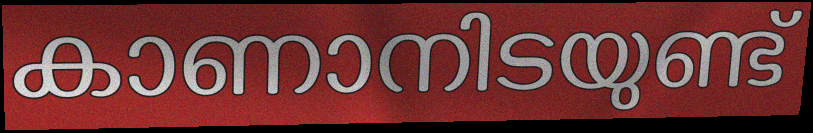
കാണാനിടയുണ്ട്